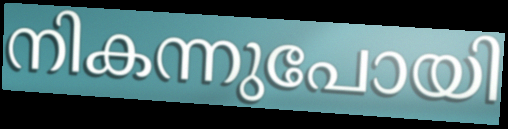
നികന്നുപോയി